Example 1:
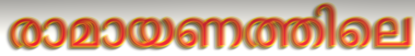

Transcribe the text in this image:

രാമായണത്തിലെ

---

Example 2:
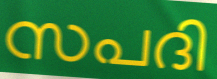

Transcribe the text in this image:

സപദി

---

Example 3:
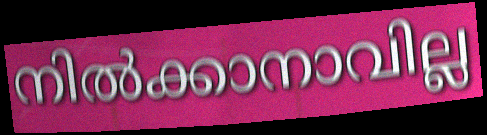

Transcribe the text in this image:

നിൽക്കാനാവില്ല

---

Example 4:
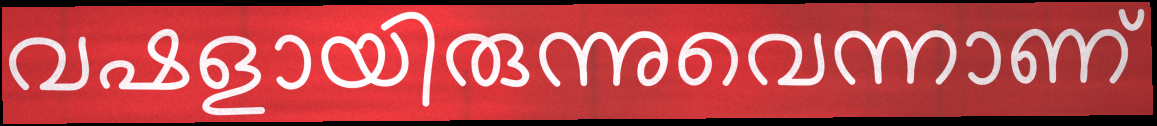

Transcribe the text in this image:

വഷളായിരുന്നുവെന്നാണ്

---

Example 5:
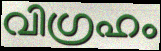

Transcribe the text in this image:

വിഗ്രഹം